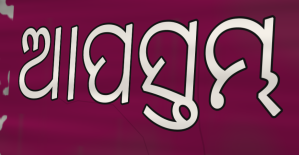
ଆପସ୍ତମ୍ଭ